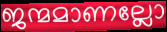
ജന്മമാണല്ലോ